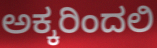
ಅಕ್ಕರಿಂದಲಿ